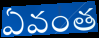
ఏవంత